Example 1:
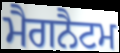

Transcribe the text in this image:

ਮੈਗਨੈਟਮ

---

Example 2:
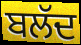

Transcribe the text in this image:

ਬਲੱਦ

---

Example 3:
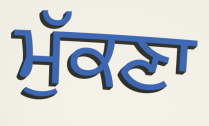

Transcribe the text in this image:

ਮੁੱਕਣਾ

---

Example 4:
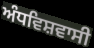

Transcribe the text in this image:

ਅੰਧਵਿਸ਼ਵਾਸੀ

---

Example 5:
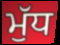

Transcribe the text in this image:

ਮੁੱਧ